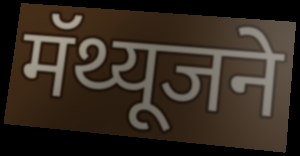
मॅथ्यूजने